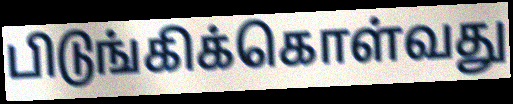
பிடுங்கிக்கொள்வது